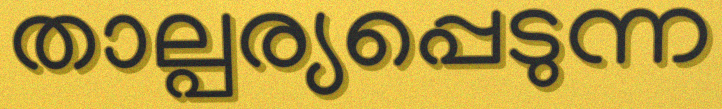
താല്പര്യപ്പെടുന്ന